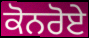
ਕੋਨਰੋਏ